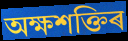
অক্ষশক্তিৰ